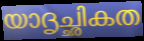
യാദൃച്ഛികത